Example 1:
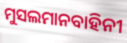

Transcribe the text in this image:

ମୁସଲମାନବାହିନୀ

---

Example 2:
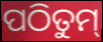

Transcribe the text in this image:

ପଠିତୁମ୍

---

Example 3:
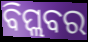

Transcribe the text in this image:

ବିପ୍ଲବର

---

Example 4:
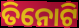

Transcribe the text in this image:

ତିନୋଟି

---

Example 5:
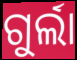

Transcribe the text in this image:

ଗୁର୍ଲା